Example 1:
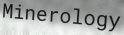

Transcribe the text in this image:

Minerology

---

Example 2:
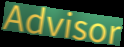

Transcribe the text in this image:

Advisor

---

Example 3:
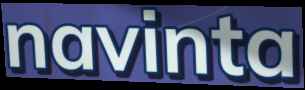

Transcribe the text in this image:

navinta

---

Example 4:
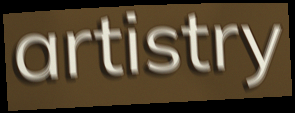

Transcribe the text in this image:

artistry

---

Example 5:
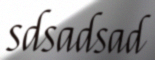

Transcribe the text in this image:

sdsadsad